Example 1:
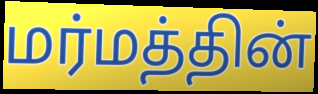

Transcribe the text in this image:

மர்மத்தின்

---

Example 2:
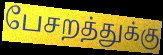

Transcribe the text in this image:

பேசறத்துக்கு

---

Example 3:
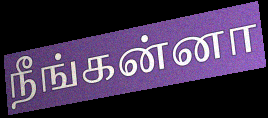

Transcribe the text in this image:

நீங்கன்னா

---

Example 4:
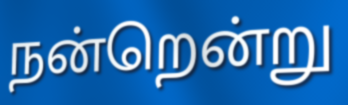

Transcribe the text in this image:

நன்றென்று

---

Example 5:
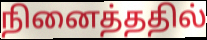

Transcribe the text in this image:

நினைத்ததில்